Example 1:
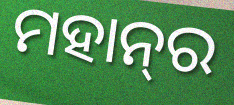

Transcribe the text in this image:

ମହାନ୍‌ର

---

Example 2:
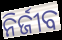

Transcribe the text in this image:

ନିର୍ଜୀବ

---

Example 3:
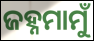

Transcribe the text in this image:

ଜହ୍ନମାମୁଁ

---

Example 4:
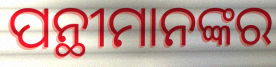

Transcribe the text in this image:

ପନ୍ଥୀମାନଙ୍କର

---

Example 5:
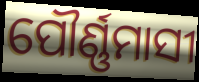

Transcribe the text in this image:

ପୌର୍ଣ୍ଣମାସୀ